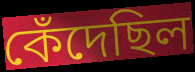
কেঁদেছিল